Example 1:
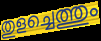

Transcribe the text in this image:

തുളച്ചെത്തും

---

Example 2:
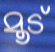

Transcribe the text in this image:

മൂട്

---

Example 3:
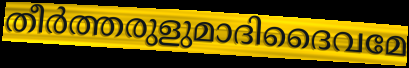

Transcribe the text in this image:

തീർത്തരുളുമാദിദൈവമേ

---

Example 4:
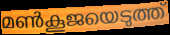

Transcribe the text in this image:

മൺകൂജയെടുത്ത്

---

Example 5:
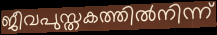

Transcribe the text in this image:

ജീവപുസ്തകത്തിൽനിന്ന്